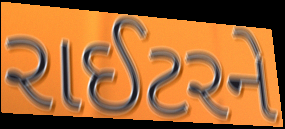
રાઈટરને